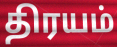
திரயம்